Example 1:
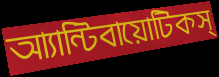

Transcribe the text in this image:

আ্যান্টিবায়োটিকস্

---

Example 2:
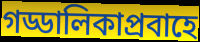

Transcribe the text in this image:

গড্ডালিকাপ্রবাহে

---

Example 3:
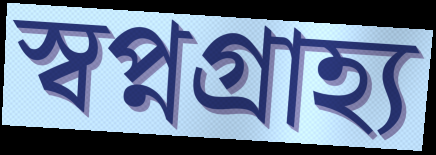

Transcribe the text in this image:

স্বপ্নগ্রাহ্য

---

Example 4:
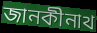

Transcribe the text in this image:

জানকীনাথ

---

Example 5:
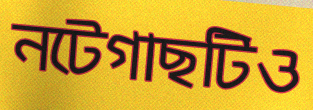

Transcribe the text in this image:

নটেগাছটিও